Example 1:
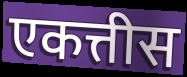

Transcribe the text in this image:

एकत्तीस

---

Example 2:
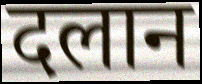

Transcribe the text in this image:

दलान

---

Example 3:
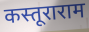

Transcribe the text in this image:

कस्तूराराम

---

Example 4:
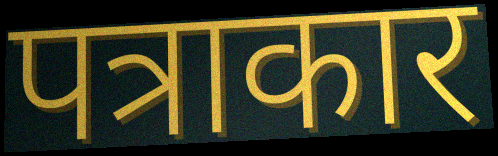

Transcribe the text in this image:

पत्राकार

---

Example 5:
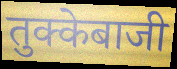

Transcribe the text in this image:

तुक्केबाजी